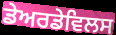
ਡੇਅਰਡੇਵਿਲਸ